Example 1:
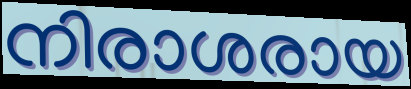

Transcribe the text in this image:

നിരാശരായ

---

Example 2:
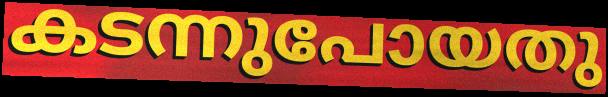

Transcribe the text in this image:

കടന്നുപോയതു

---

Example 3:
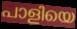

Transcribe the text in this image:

പാളിയെ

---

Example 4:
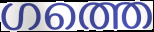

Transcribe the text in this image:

ഗത്തെ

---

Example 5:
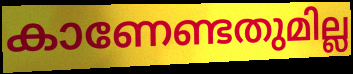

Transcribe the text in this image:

കാണേണ്ടതുമില്ല